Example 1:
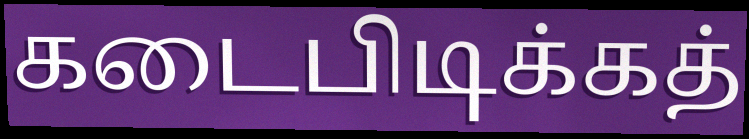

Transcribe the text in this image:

கடைபிடிக்கத்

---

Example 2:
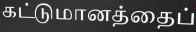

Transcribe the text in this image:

கட்டுமானத்தைப்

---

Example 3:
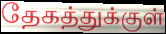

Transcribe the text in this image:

தேகத்துக்குள்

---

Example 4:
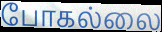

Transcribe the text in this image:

போகல்லை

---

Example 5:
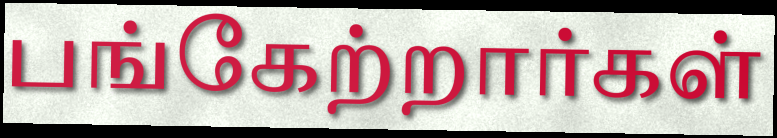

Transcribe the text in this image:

பங்கேற்றார்கள்